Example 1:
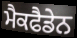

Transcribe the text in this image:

ਮੈਕਫੈਡੇਨ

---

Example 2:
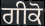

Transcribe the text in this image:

ਗੀਕੋ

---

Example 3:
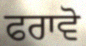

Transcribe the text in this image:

ਫਰਾਵੋ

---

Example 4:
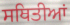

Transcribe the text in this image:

ਸਥਿਤੀਆਂ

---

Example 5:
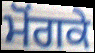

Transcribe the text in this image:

ਮੋਂਗਕੇ